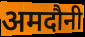
अमदौनी